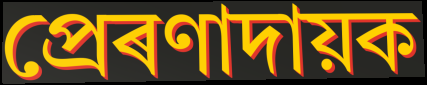
প্ৰেৰণাদায়ক